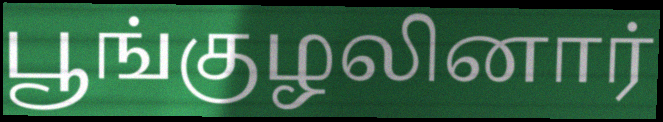
பூங்குழலினார்